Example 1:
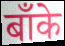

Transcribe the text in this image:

बाँके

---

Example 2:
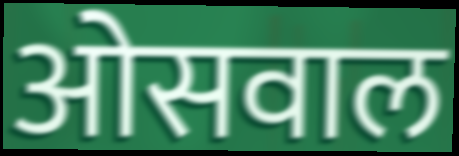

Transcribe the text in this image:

ओसवाल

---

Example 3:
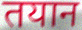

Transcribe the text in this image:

तयान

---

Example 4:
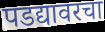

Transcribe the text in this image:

पडद्यावरचा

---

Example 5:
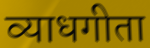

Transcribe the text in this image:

व्याधगीता